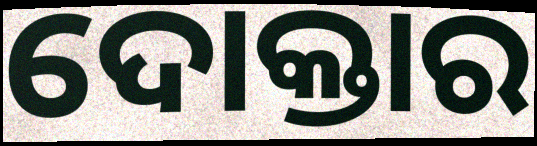
ଦୋକ୍ତାର